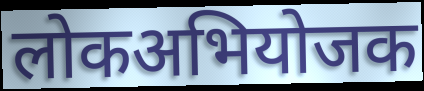
लोकअभियोजक